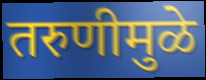
तरुणीमुळे